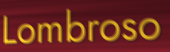
Lombroso